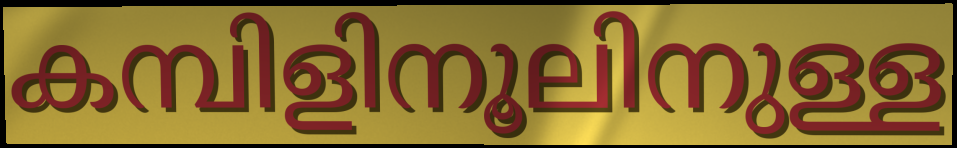
കമ്പിളിനൂലിനുള്ള